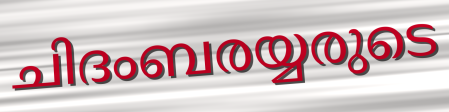
ചിദംബരയ്യരുടെ